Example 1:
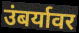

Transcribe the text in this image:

उंबर्यावर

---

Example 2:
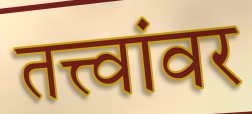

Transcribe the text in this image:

तत्त्वांवर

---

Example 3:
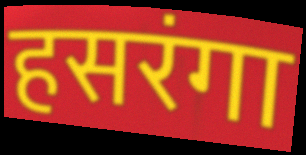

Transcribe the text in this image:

हसरंगा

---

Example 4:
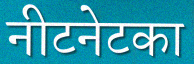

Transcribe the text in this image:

नीटनेटका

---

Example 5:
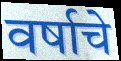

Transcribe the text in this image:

वर्षाचे